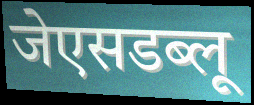
जेएसडब्‍लू